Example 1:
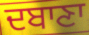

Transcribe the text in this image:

ਦਬਾਣਾ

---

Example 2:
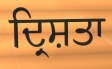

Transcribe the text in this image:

ਦ੍ਰਿਸ਼ਤਾ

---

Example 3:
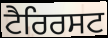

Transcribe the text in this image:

ਟੈਰਿਰਸਟ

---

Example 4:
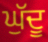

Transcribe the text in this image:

ਘੁੱਦੂ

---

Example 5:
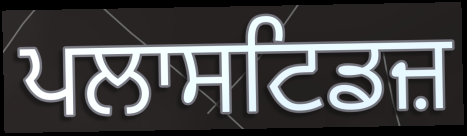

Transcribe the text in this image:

ਪਲਾਸਟਿਡਜ਼